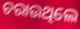
ଚରାଉଥିଲେ